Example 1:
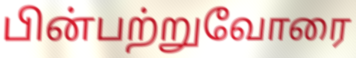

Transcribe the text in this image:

பின்பற்றுவோரை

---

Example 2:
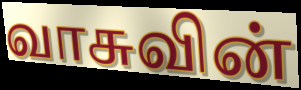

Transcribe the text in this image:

வாசுவின்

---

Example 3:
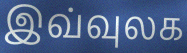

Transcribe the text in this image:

இவ்வுலக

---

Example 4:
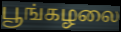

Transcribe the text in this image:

பூங்கழலை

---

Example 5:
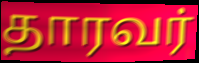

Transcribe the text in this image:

தாரவர்